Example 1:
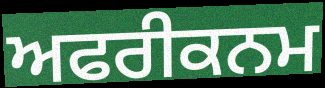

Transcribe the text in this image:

ਅਫਰੀਕਨਮ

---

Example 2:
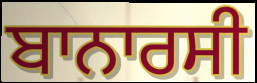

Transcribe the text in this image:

ਬਾਨਾਰਸੀ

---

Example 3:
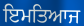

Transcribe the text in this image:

ਇਮਤਿਆਜ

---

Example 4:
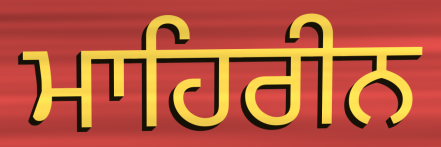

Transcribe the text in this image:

ਮਾਹਿਰੀਨ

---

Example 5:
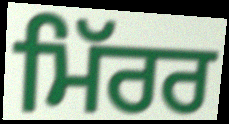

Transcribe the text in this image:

ਮਿੱਰਰ